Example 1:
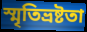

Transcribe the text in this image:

স্মৃতিভ্রষ্টতা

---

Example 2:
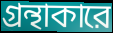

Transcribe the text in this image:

গ্রন্থাকারে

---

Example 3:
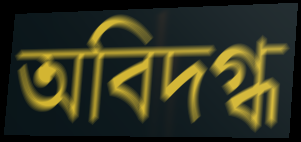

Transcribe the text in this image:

অবিদগ্ধ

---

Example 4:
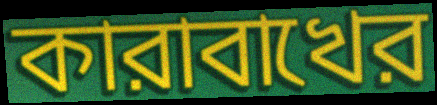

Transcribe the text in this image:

কারাবাখের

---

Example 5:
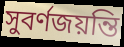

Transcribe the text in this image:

সুবর্ণজয়ন্তি